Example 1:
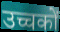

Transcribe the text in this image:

उच्चकों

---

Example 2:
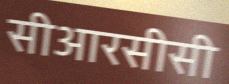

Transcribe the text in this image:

सीआरसीसी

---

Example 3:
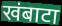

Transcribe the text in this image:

खंबाटा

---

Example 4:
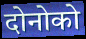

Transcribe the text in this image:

दोनोको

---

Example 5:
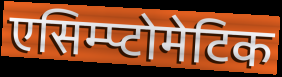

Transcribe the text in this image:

एसिम्प्टोमेटिक